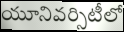
యూనివర్సిటీలో